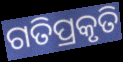
ଗତିପ୍ରକୃତି